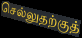
செல்லுதற்குத்